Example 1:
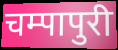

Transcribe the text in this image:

चम्पापुरी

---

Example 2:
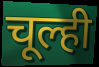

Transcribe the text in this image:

चूल्ही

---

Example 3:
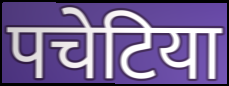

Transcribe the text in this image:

पचेटिया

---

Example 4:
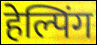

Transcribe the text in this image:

हेल्पिंग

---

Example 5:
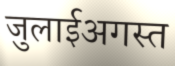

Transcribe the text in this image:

जुलाईअगस्त